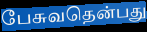
பேசுவதென்பது